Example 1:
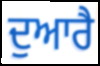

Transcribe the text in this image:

ਦੁਆਰੈ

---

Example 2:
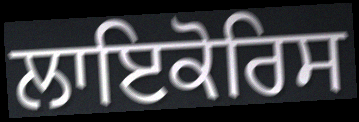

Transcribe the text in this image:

ਲਾਇਕੋਰਿਸ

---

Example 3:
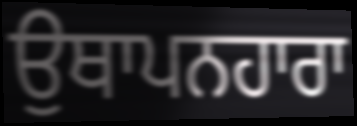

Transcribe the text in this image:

ਉਥਾਪਨਹਾਰਾ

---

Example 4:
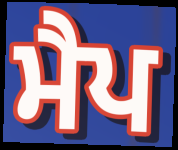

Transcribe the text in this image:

ਮੈਪ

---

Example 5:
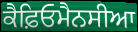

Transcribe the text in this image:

ਕੈਫ਼ਿਓਮੈਨਸੀਆ